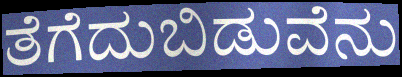
ತೆಗೆದುಬಿಡುವೆನು